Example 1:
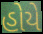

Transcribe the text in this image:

હોયે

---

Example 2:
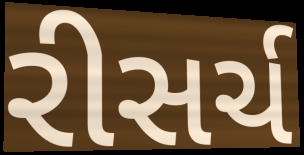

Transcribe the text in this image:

રીસર્ચ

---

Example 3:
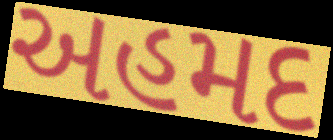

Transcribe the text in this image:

અહમદ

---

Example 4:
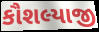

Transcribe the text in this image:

કૌશલ્યાજી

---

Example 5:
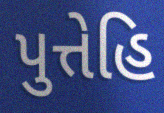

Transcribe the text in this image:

પુત્તેહિ